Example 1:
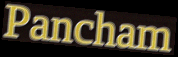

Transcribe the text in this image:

Pancham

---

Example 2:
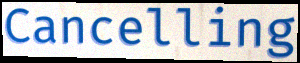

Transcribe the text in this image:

Cancelling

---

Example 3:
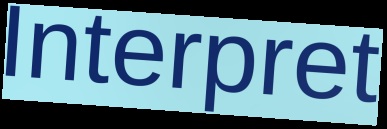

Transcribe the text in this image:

Interpret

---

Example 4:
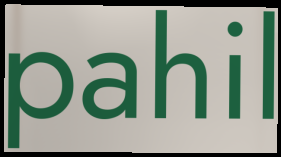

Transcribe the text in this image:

pahil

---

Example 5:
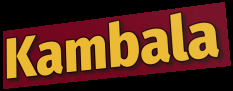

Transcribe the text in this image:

Kambala